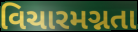
વિચારમગ્નતા